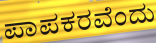
ಪಾಪಕರವೆಂದು